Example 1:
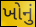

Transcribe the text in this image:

ખોનું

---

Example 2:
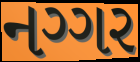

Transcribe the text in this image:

નગ્ગર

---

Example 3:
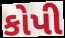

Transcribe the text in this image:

કોપી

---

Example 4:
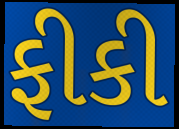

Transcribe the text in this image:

ફીકી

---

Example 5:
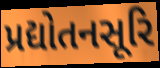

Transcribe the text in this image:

પ્રદ્યોતનસૂરિ